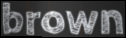
brown